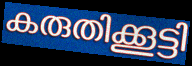
കരുതിക്കൂട്ടി